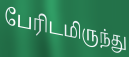
பேரிடமிருந்து